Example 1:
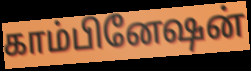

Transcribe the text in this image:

காம்பினேஷன்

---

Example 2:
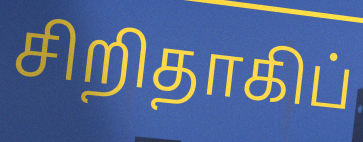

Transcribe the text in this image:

சிறிதாகிப்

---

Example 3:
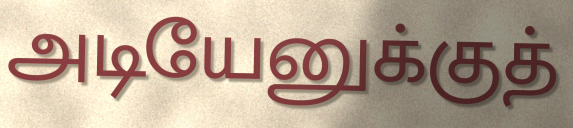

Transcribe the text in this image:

அடியேனுக்குத்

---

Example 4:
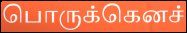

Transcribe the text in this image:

பொருக்கெனச்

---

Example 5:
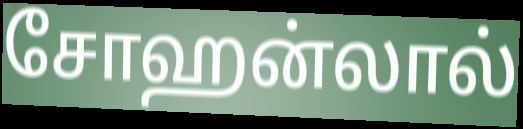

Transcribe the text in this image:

சோஹன்லால்